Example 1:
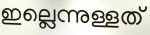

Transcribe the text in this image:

ഇല്ലെന്നുള്ളത്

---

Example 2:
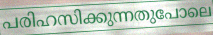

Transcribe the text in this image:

പരിഹസിക്കുന്നതുപോലെ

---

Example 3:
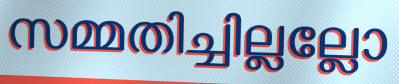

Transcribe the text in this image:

സമ്മതിച്ചില്ലല്ലോ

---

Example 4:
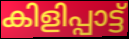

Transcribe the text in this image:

കിളിപ്പാട്ട്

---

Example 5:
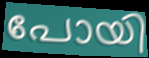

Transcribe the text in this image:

പോയി